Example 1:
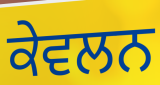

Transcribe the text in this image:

ਕੇਵਲਨ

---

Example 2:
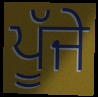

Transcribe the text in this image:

ਪੂੱਜੇ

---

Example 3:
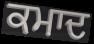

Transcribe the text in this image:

ਕਮਾਦ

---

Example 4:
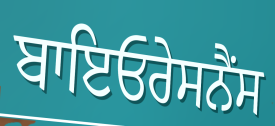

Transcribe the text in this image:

ਬਾਇਓਰੇਸਨੈਂਸ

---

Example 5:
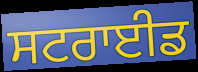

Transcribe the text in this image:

ਸਟਰਾਈਡ